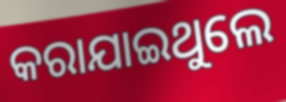
କରାଯାଇଥୁଲେ